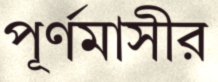
পূর্ণমাসীর